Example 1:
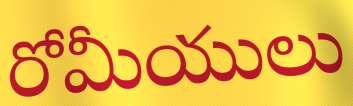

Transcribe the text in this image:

రోమీయులు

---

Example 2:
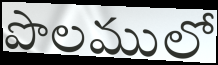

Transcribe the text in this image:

పొలములో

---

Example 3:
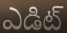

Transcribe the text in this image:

ఎడిట్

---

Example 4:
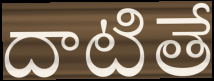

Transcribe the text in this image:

దాటితే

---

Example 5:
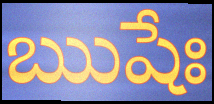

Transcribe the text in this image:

ఋషేః